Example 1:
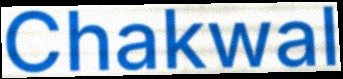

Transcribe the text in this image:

Chakwal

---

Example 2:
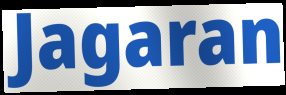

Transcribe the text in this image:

Jagaran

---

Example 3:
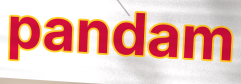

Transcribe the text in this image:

pandam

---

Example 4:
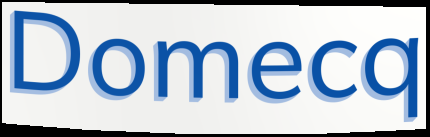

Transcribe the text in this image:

Domecq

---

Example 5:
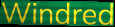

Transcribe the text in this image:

Windred